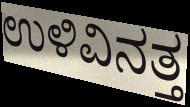
ಉಳಿವಿನತ್ತ